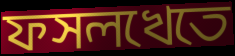
ফসলখেতে